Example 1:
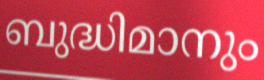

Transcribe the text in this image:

ബുദ്ധിമാനും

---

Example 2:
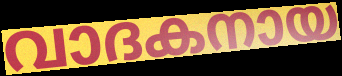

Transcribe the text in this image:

വാദകനായ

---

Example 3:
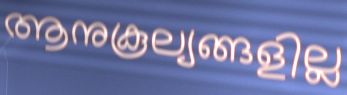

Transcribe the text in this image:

ആനുകൂല്യങ്ങളില്ല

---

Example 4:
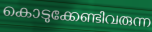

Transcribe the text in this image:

കൊടുക്കേണ്ടിവരുന്ന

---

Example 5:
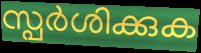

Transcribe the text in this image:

സ്പർശിക്കുക